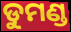
ଡୁମଣ୍ଡ